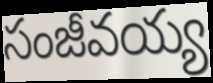
సంజీవయ్య